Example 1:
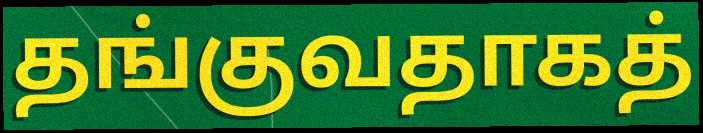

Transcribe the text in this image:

தங்குவதாகத்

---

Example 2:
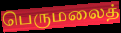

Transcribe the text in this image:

பெருமலைத்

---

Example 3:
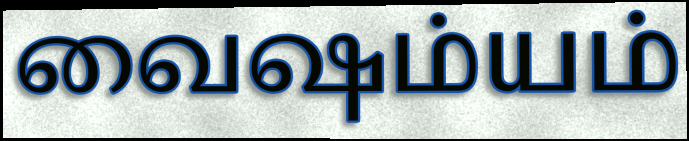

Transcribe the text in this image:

வைஷம்யம்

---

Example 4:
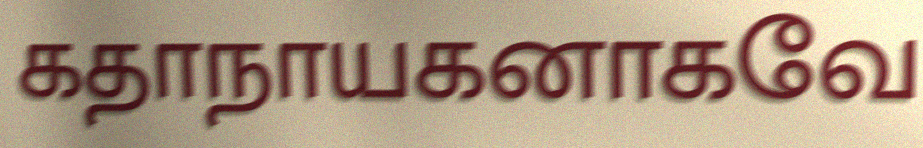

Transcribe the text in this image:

கதாநாயகனாகவே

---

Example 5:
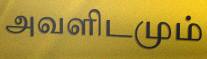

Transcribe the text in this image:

அவளிடமும்